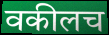
वकीलच